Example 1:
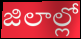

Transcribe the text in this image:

జిలాల్లో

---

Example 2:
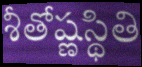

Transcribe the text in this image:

శీతోష్ణస్థితి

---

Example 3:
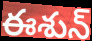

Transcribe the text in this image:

ఈశున్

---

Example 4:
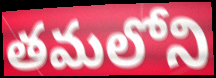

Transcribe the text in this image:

తమలోని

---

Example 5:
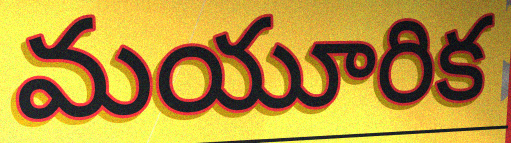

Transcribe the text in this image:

మయూరిక